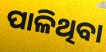
ପାଳିଥିବା